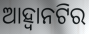
ଆହ୍ଵାନଟିର